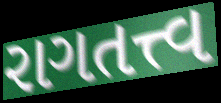
રાગતત્ત્વ